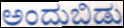
ಅಂದುಬಿಡು